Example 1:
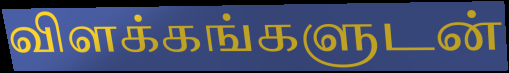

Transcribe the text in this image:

விளக்கங்களுடன்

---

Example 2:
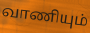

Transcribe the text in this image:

வாணியும்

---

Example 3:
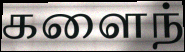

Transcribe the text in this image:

களைந்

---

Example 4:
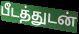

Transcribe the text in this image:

பீடத்துடன்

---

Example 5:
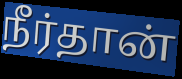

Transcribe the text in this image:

நீர்தான்